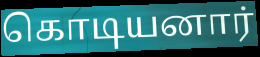
கொடியனார்